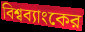
বিশ্বব্যাংকের